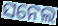
ସନେଲ